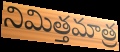
నిమిత్తమాత్ర